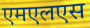
एमएलएस